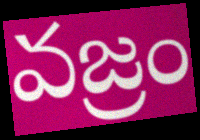
వజ్రం